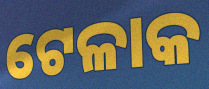
ଟେଳାକ